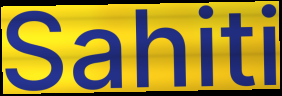
Sahiti